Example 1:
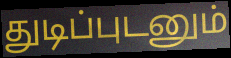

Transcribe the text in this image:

துடிப்புடனும்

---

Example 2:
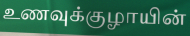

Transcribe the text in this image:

உணவுக்குழாயின்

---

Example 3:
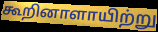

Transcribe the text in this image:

கூறினாளாயிற்று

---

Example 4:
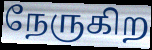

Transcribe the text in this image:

நேருகிற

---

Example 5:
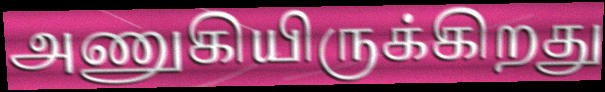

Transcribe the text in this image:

அணுகியிருக்கிறது